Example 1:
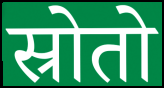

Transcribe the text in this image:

स्रोतो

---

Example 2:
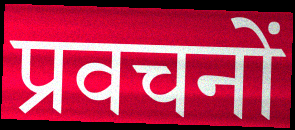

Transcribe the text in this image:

प्रवचनों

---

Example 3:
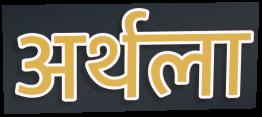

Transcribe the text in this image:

अर्थला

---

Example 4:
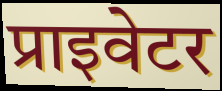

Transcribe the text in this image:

प्राइवेटर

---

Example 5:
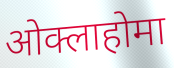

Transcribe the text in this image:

ओक्लाहोमा